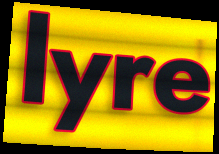
lyre